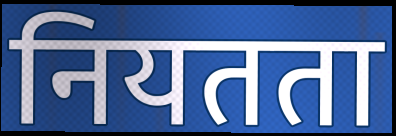
नियतता